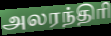
அலரந்திரி